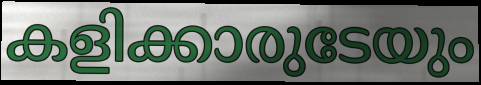
കളിക്കാരുടേയും